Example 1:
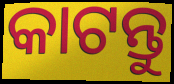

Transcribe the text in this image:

କାଟନ୍ତୁ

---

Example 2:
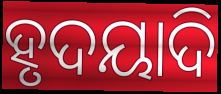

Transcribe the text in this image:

ହୃଦୟାଦି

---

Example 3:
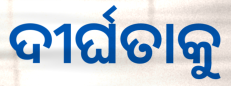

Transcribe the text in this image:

ଦୀର୍ଘତାକୁ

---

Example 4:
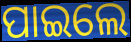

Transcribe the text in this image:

ପାଇଲେ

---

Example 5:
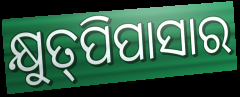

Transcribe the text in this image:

କ୍ଷୁତ୍‌ପିପାସାର